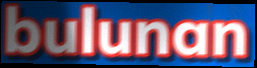
bulunan